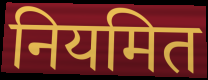
नियमित